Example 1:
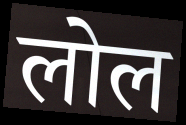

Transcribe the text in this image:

लोल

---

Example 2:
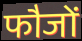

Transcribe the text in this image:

फौजों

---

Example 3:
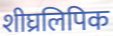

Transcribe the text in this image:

शीघ्रलिपिक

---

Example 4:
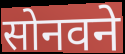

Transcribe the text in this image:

सोनवने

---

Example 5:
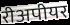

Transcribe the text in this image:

रीअपीयर